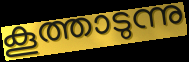
കൂത്താടുന്നു